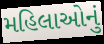
મહિલાઓનું